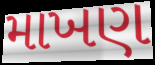
માખણ